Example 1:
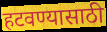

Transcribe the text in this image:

हटवण्यासाठी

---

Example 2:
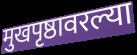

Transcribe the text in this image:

मुखपृष्ठावरल्या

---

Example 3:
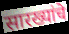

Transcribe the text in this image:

सारख्यांचे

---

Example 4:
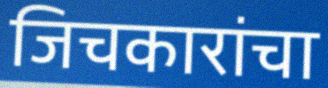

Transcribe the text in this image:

जिचकारांचा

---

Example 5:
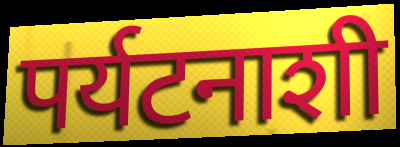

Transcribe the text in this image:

पर्यटनाशी